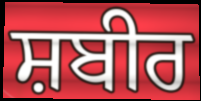
ਸ਼ਬੀਰ